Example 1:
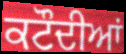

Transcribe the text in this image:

ਕਟੌਦੀਆਂ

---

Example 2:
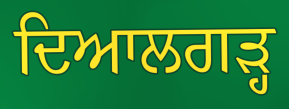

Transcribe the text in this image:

ਦਿਆਲਗੜ੍ਹ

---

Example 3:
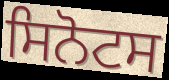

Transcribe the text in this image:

ਸਿਨੋਟਸ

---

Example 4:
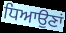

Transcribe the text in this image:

ਧਿਆਉਣਾਂ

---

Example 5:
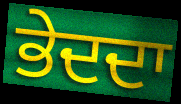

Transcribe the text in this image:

ਭੇਦਦਾ